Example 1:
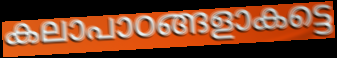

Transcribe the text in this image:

കലാപാഠങ്ങളാകട്ടെ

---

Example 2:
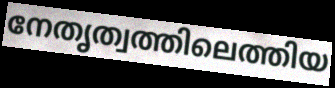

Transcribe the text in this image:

നേതൃത്വത്തിലെത്തിയ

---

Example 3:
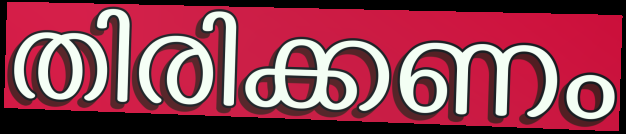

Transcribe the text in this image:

തിരിക്കണം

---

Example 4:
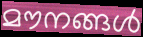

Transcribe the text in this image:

മൗനങ്ങൾ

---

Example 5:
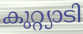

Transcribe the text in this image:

കുറ്റ്യാടി